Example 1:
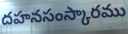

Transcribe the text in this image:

దహనసంస్కారము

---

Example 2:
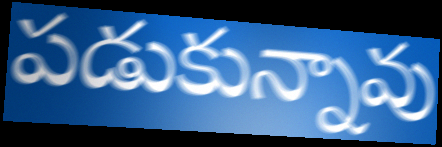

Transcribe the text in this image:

పడుకున్నావు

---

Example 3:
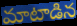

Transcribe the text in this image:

మాటాడిన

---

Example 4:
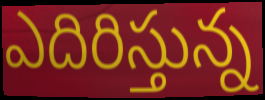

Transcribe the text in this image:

ఎదిరిస్తున్న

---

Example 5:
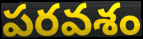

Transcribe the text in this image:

పరవశం